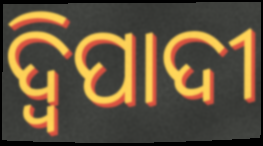
ଦ୍ୱିପାଦୀ